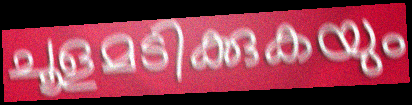
ചൂളമടിക്കുകയും